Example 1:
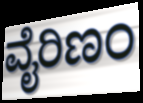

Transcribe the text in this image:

ವೈರಿಣಂ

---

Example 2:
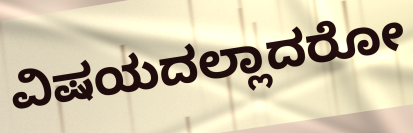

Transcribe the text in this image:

ವಿಷಯದಲ್ಲಾದರೋ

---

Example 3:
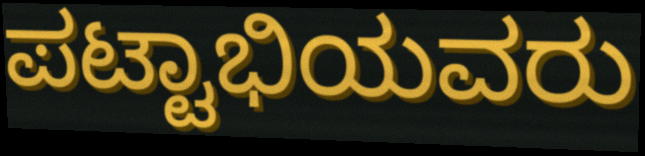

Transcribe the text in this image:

ಪಟ್ಟಾಭಿಯವರು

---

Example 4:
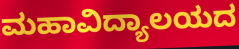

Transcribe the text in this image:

ಮಹಾವಿದ್ಯಾಲಯದ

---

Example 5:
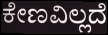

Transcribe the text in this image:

ಕೇಣವಿಲ್ಲದೆ